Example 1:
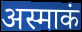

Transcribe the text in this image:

अस्माकं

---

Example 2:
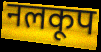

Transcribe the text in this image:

नलकूप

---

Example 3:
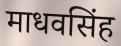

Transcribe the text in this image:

माधवसिंह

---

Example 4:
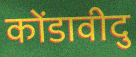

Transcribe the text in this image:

कोंडावीदु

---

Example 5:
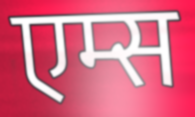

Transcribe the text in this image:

एम्‍स